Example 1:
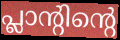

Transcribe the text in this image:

പ്ലാന്റിന്റെ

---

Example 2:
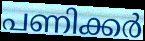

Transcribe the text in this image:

പണിക്കർ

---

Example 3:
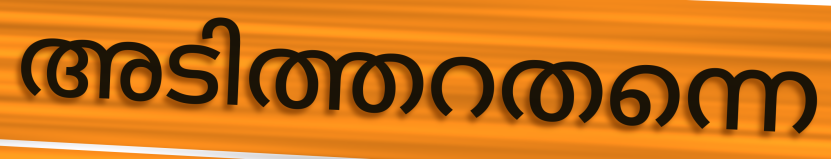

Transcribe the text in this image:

അടിത്തറതന്നെ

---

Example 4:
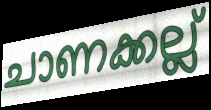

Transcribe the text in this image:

ചാണക്കല്ല്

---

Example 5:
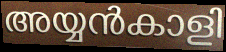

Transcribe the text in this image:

അയ്യൻകാളി